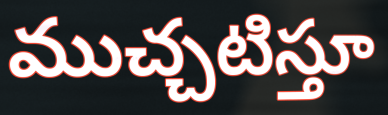
ముచ్చటిస్తూ